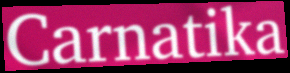
Carnatika